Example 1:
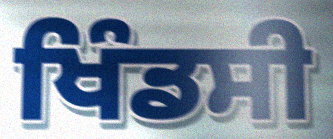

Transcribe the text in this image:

ਖਿੰਡਸੀ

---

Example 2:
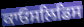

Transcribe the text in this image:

ਕਾਓਸਲਿਡਿਸ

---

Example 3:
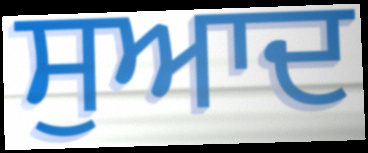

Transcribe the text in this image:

ਸੁਆਦ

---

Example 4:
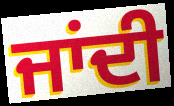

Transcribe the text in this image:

ਜਾਂਦੀ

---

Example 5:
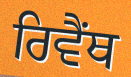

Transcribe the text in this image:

ਰਿਵੈਂਥ